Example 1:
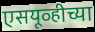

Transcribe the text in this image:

एसयूव्हीच्या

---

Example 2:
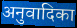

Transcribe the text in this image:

अनुवादिका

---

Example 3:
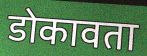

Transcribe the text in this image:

डोकावता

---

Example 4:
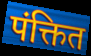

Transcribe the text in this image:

पंक्तित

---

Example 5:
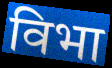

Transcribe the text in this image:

विभा